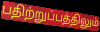
பதிற்றுப்பத்திலும்